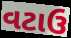
વટાઉ